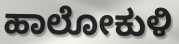
ಹಾಲೋಕುಳಿ